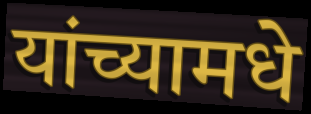
यांच्यामधे